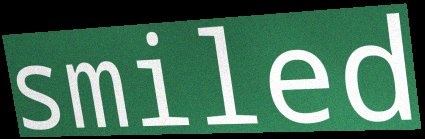
smiled